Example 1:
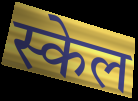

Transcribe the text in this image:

स्केल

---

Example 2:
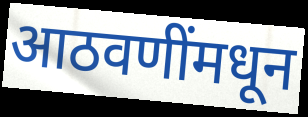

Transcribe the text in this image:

आठवणींमधून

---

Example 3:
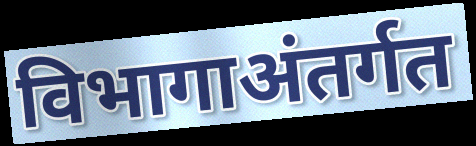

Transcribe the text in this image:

विभागाअंतर्गत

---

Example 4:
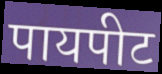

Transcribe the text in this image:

पायपीट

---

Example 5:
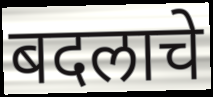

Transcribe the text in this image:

बदलाचे